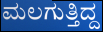
ಮಲಗುತ್ತಿದ್ದ